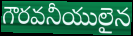
గౌరవనీయులైన